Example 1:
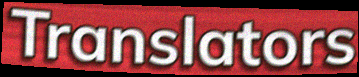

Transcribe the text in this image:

Translators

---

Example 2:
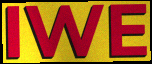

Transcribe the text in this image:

IWE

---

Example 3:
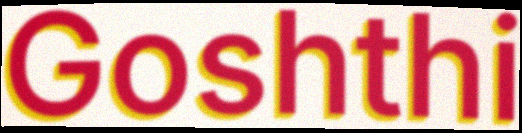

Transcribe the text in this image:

Goshthi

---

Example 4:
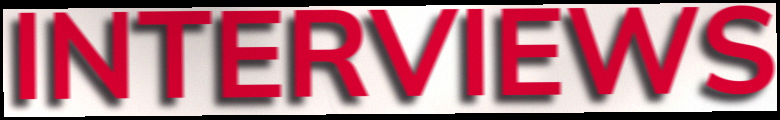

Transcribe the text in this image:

INTERVIEWS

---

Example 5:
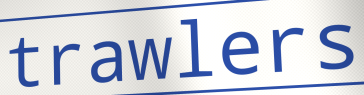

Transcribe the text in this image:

trawlers